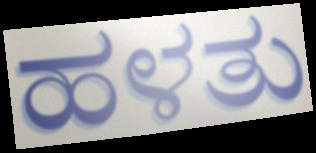
ಹಳತು